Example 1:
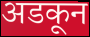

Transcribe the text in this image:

अडकून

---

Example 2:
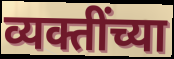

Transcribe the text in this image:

व्यक्तींच्या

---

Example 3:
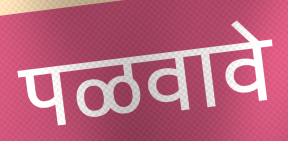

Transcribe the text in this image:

पळवावे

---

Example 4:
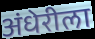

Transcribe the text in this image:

अंधेरीला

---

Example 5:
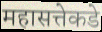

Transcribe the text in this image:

महासत्तेकडे